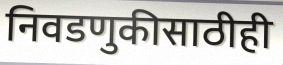
निवडणुकीसाठीही